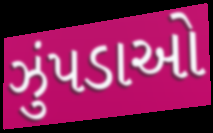
ઝુંપડાઓ